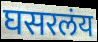
घसरलंय